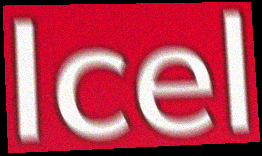
Icel